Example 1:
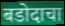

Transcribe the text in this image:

बडोदाचा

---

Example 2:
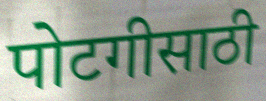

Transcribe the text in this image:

पोटगीसाठी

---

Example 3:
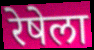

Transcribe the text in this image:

रेषेला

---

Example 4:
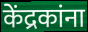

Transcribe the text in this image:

केंद्रकांना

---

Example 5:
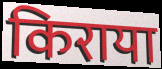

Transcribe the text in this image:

किराया